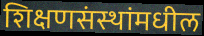
शिक्षणसंस्थांमधील